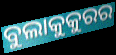
ବୁଲାକୁକୁରର